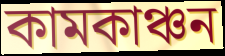
কামকাঞ্চন